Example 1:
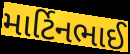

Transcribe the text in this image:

માર્ટિનભાઈ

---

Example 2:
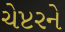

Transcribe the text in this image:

ચેપ્ટરને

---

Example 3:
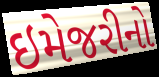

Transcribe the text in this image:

ઇમેજરીનો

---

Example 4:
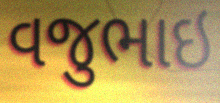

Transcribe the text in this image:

વજુભાઇ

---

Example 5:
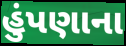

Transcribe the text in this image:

હુંપણાના